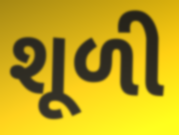
શૂળી